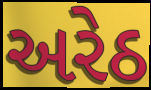
અરેઠ